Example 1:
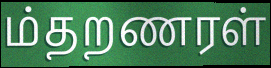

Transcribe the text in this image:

ம்தறணரள்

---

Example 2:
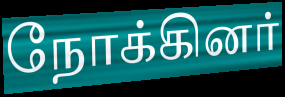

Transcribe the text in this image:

நோக்கினர்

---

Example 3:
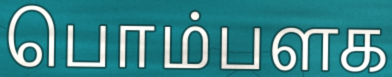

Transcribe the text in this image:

பொம்பளக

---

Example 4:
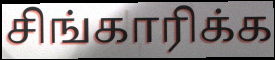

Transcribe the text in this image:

சிங்காரிக்க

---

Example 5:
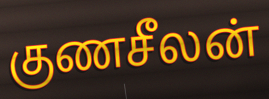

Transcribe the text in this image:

குணசீலன்